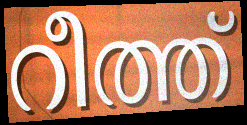
റീത്ത്